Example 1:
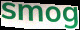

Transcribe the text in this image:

smog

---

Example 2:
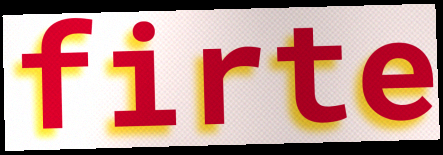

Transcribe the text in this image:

firte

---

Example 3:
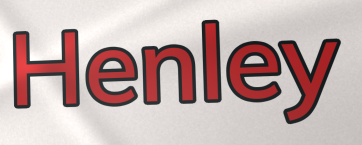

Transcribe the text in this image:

Henley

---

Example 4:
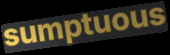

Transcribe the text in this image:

sumptuous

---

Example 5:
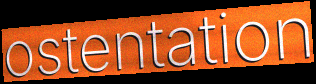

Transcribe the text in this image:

ostentation